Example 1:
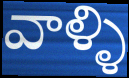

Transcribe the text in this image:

వాళ్ళి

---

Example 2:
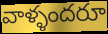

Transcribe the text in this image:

వాళ్ళందరూ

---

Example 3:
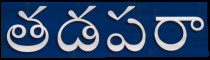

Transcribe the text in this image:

తడపరా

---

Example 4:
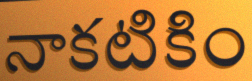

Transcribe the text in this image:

నాకటికిం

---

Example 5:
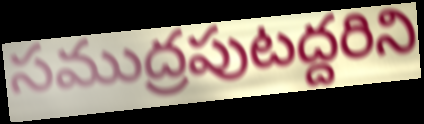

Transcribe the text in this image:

సముద్రపుటద్దరిని